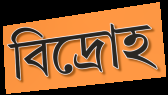
বিদ্রোহ